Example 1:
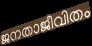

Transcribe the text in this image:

ജനതാജീവിതം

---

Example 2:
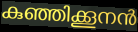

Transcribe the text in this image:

കുഞ്ഞിക്കൂനൻ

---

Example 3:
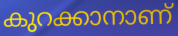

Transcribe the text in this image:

കുറക്കാനാണ്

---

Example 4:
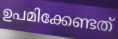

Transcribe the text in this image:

ഉപമിക്കേണ്ടത്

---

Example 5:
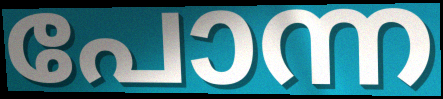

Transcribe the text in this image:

പോന്ന